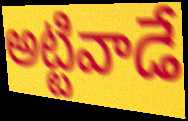
అట్టివాడే